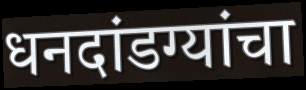
धनदांडग्यांचा